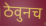
ठेवुनच